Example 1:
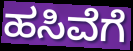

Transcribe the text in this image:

ಹಸಿವೆಗೆ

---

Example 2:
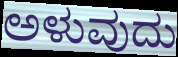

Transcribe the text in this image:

ಅಳುವುದು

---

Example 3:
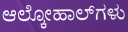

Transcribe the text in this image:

ಆಲ್ಕೋಹಾಲ್‌ಗಳು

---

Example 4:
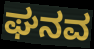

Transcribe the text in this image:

ಘನವ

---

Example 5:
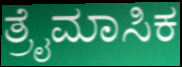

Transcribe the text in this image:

ತ್ರೈಮಾಸಿಕ